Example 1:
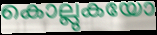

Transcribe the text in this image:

കൊല്ലുകയോ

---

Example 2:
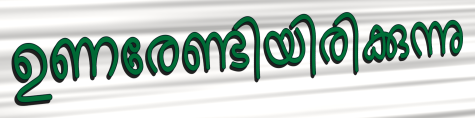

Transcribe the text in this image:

ഉണരേണ്ടിയിരിക്കുന്നു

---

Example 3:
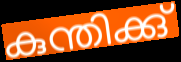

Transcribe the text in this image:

കുന്തിക്കു്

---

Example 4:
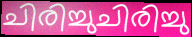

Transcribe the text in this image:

ചിരിച്ചുചിരിച്ചു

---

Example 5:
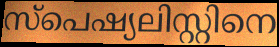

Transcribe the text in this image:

സ്പെഷ്യലിസ്റ്റിനെ